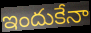
ఇందుకేనా